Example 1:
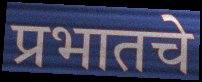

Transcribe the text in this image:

प्रभातचे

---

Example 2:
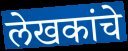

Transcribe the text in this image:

लेखकांचे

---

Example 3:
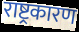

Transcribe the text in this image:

राष्ट्रकारण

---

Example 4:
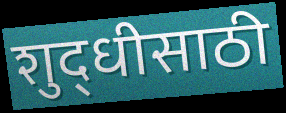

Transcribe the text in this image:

शुद्धीसाठी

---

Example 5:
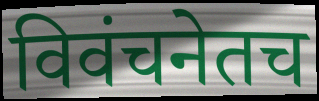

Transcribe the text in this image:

विवंचनेतच